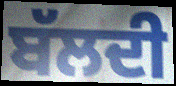
ਬੱਲਦੀ